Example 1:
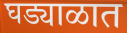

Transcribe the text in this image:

घड्याळात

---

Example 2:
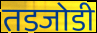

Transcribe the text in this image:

तडजोडी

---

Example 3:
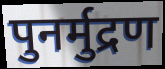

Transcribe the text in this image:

पुनर्मुद्रण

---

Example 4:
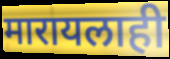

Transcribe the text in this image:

मारायलाही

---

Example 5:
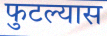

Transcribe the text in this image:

फुटल्यास